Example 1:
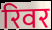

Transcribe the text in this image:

रिवर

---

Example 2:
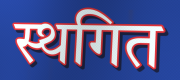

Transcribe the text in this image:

स्थगित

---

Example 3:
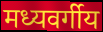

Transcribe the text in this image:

मध्यवर्गीय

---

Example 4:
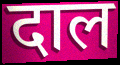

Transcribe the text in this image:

दाल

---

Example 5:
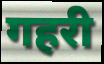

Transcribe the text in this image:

गहरी